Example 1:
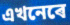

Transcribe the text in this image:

এখনেৰে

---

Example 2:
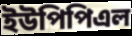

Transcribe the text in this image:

ইউপিপিএল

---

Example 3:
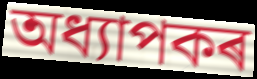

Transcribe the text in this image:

অধ্যাপকৰ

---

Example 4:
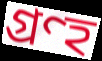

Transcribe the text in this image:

গ্ৰণ্হ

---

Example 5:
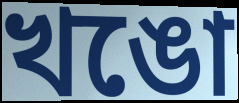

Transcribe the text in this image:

খঙো